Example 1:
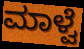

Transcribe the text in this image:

ಮಾಳ್ವೆ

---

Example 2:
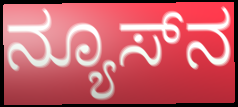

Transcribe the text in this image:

ನ್ಯೂಸ್‌ನ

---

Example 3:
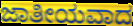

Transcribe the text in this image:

ಜಾತೀಯವಾದ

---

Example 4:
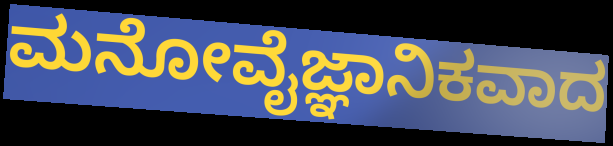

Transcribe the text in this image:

ಮನೋವೈಜ್ಞಾನಿಕವಾದ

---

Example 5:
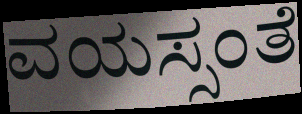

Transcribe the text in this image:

ವಯಸ್ಸಂತೆ